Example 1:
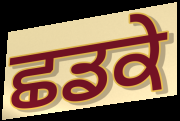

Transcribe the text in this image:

ਛਡਕੇ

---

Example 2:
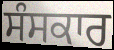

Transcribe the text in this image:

ਸੰਸਕਾਰ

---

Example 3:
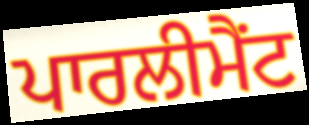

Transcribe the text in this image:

ਪਾਰਲੀਮੈਂਟ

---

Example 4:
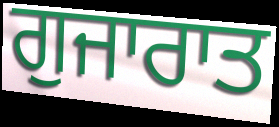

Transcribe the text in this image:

ਗੁਜਾਰਾਤ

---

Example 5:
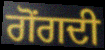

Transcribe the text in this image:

ਗੋਂਗਦੀ